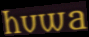
huwa